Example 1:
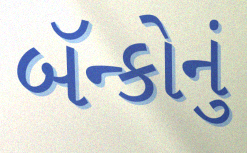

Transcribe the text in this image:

બૅન્કોનું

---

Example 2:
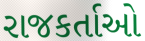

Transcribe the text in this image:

રાજકર્તાઓ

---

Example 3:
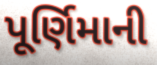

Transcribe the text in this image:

પૂર્ણિમાની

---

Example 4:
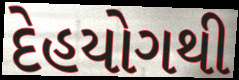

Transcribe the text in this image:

દેહયોગથી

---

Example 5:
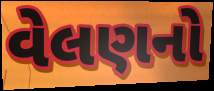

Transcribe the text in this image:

વેલણનો